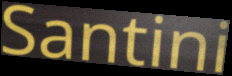
Santini